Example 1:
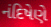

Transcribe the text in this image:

નંદિષેણે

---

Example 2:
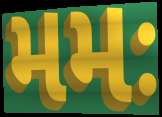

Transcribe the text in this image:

મમઃ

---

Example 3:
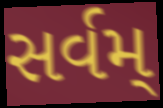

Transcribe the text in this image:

સર્વમ્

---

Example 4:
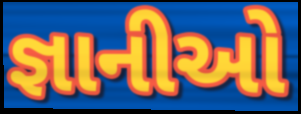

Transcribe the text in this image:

જ્ઞાનીઓ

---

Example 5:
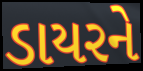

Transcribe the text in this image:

ડાયરને